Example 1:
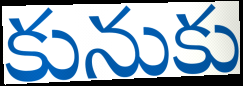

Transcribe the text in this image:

కునుకు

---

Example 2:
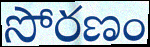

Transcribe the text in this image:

సోరణం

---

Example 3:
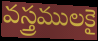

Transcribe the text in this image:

వస్త్రములకై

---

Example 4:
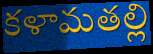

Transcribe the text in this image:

కళామతల్లి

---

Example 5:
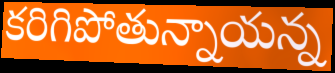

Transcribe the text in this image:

కరిగిపోతున్నాయన్న